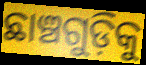
ଛାଞ୍ଚଗୁଡ଼ିକୁ